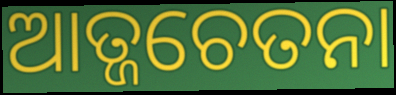
ଆତ୍ଜଚେତନା